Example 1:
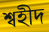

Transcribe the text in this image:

শ্বহীদ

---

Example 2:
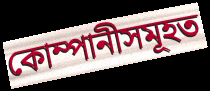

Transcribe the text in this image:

কোম্পানীসমূহত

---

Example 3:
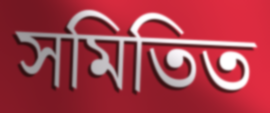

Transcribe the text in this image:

সমিতিত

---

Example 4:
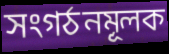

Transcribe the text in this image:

সংগঠনমূলক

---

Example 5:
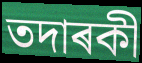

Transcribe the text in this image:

তদাৰকী